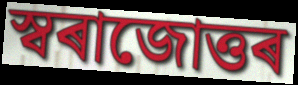
স্বৰাজোত্তৰ